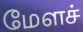
மேளச்